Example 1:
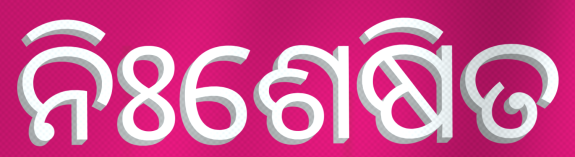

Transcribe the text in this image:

ନିଃଶେଷିତ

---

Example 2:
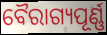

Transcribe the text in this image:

ବୈରାଗ୍ୟପୂର୍ଣ୍ଣ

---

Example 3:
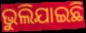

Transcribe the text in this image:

ଭୁଲିଯାଇଛି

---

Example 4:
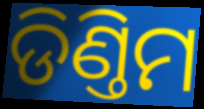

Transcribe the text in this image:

ଡିଣ୍ତିମ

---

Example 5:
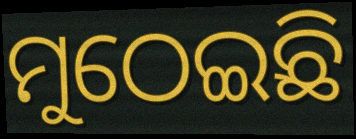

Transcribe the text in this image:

ମୁଠେଇଛି